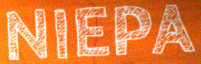
NIEPA